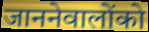
जाननेवालोंको